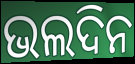
ଭଲଦିନ